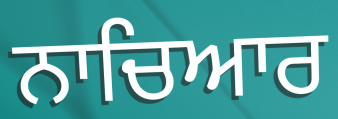
ਨਾਚਿਆਰ